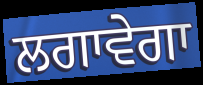
ਲਗਾਵੇਗਾ